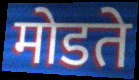
मोडते